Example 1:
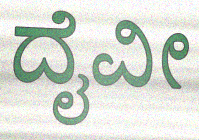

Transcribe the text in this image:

ದೈವೀ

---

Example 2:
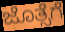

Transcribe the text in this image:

ಜೊತ್ಸೆಗೆ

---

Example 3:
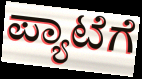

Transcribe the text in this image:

ಪ್ಯಾಟೆಗೆ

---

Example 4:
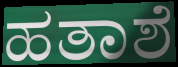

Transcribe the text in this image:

ಹತಾಶೆ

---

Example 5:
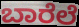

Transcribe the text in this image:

ಬಾರೆಲೆ